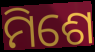
ମିଶେ